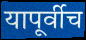
यापूर्वीच